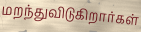
மறந்துவிடுகிறார்கள்